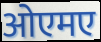
ओएमए